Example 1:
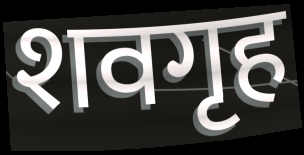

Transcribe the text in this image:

शवगृह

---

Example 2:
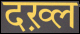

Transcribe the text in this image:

दख़्ल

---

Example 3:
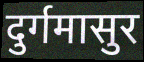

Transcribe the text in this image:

दुर्गमासुर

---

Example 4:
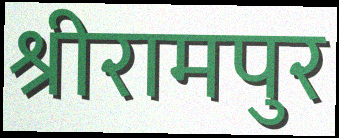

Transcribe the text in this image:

श्रीरामपुर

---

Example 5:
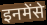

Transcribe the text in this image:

इनमेंसे